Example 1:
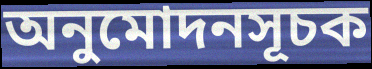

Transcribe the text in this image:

অনুমোদনসূচক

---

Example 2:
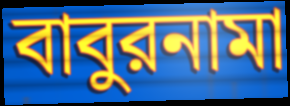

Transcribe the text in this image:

বাবুরনামা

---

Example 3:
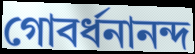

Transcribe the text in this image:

গোবর্ধনানন্দ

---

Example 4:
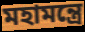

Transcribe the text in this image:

মহামন্ত্রে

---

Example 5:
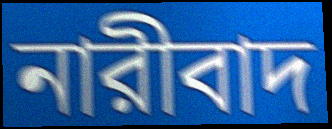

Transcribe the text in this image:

নারীবাদ